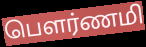
பௌர்ணமி